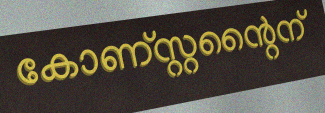
കോണ്സ്റ്റന്റൈന്